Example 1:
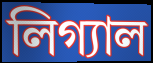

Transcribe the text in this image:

লিগ্যাল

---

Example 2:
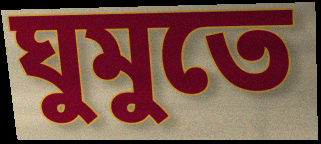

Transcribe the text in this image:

ঘুমুতে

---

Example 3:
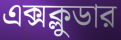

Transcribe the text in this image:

এক্সক্লুডার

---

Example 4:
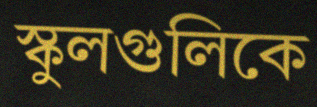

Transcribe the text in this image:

স্কুলগুলিকে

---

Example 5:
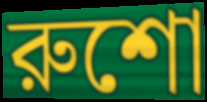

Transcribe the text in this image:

রুশো